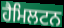
ਹੈਮਿਲਟਨ